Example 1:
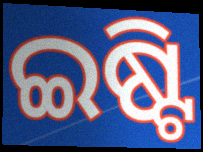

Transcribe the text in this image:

ଇଷ୍ଟି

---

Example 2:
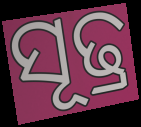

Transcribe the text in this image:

ସୂଢ୍ର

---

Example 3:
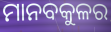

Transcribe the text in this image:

ମାନବକୁଳର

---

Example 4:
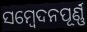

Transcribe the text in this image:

ସମ୍ବେଦନପୂର୍ଣ୍ଣ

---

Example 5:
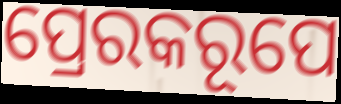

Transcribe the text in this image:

ପ୍ରେରକରୂପେ